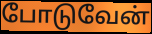
போடுவேன்